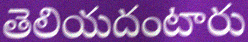
తెలియదంటారు